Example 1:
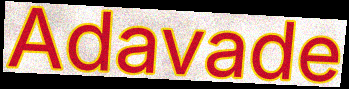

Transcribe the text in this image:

Adavade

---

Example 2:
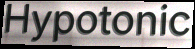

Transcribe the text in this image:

Hypotonic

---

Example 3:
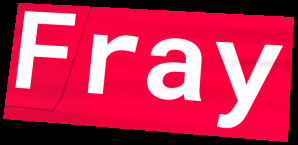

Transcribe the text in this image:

Fray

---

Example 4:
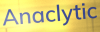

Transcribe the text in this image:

Anaclytic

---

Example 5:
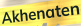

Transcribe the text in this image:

Akhenaten